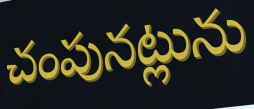
చంపునట్లును